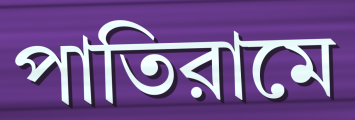
পাতিরামে